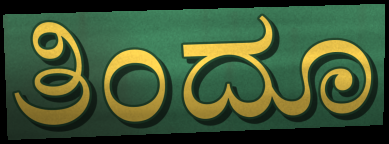
ತಿಂದೂ